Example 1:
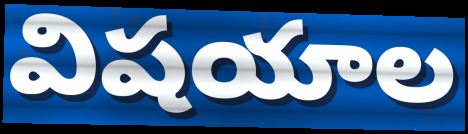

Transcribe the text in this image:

విషయాల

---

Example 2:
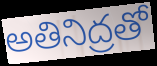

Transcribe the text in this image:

అతినిద్రతో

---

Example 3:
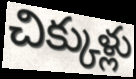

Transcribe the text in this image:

చిక్కుళ్లు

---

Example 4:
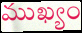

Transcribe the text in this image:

ముఖ్యం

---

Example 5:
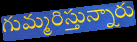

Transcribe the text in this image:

గుమ్మరిస్తున్నారు